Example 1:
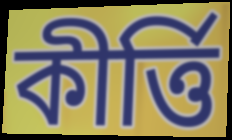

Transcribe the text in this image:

কীর্ত্তি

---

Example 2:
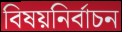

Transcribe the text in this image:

বিষয়নির্বাচন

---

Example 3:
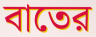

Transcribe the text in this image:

বাতের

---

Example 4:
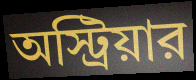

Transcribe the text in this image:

অস্ট্রিয়ার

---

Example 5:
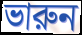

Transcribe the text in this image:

ভারুন